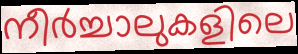
നീർച്ചാലുകളിലെ